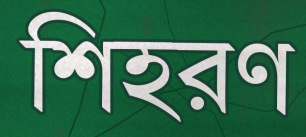
শিহরণ